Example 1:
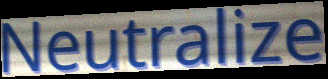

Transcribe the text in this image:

Neutralize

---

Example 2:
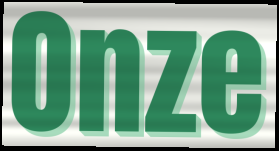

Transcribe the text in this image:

Onze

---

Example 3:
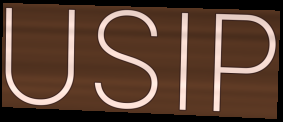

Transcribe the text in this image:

USIP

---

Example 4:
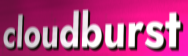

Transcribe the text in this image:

cloudburst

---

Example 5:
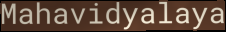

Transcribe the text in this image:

Mahavidyalaya